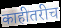
काहीतरीच